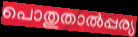
പൊതുതാൽപ്പര്യ